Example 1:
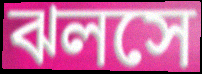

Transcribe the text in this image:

ঝলসে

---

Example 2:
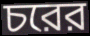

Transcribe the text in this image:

চরের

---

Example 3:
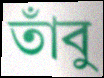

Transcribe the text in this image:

তাঁবু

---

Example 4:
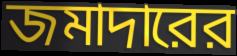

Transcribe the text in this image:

জমাদারের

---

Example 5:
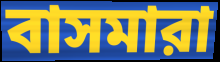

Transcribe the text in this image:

বাসমারা